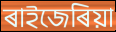
ৰাইজেৰিয়া